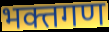
भक्तगण